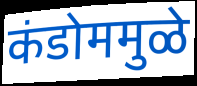
कंडोममुळे